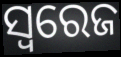
ସ୍ବରେଜ